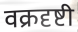
वक्रदृष्टी